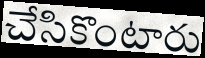
చేసికొంటారు